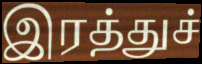
இரத்துச்